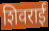
शिवराई